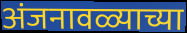
अंजनावळ्याच्या